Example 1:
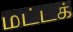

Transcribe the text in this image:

மட்டக்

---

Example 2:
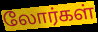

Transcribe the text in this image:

லோர்கள்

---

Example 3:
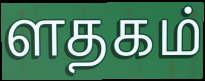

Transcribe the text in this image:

ளதகம்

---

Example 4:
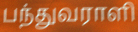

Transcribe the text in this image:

பந்துவராளி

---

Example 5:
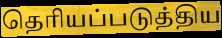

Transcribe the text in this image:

தெரியப்படுத்திய